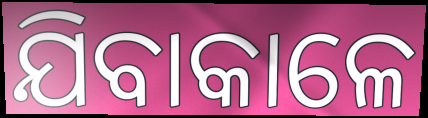
ଯିବାକାଳେ